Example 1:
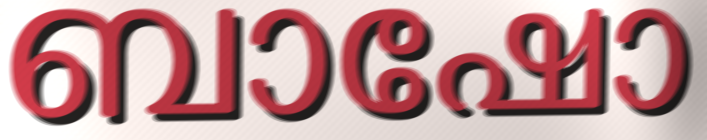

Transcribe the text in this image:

ബാഷോ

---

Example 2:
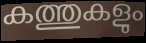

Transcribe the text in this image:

കത്തുകളും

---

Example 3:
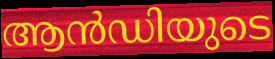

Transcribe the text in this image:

ആൻഡിയുടെ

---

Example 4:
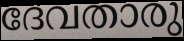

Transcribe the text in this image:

ദേവതാരു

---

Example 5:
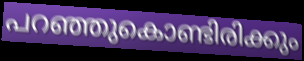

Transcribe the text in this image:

പറഞ്ഞുകൊണ്ടിരിക്കും